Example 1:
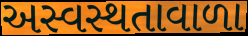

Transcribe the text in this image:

અસ્વસ્થતાવાળા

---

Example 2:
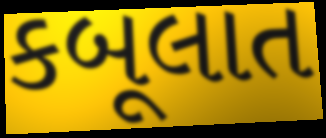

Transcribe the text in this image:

કબૂલાત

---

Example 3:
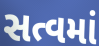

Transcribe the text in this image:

સત્વમાં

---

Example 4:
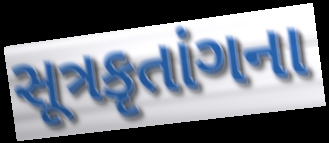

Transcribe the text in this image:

સૂત્રકૃતાંગના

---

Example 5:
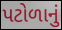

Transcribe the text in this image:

પટોળાનું